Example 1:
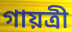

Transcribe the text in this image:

গায়ত্রী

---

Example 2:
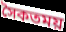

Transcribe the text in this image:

সৈকতময়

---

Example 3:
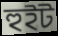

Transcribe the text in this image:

হুইট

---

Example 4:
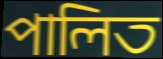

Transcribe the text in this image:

পালিত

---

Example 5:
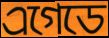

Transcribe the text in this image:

এগেডে